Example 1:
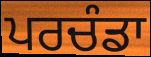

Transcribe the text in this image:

ਪਰਚੰਡਾ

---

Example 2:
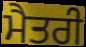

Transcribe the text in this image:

ਮੈਤਰੀ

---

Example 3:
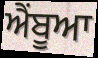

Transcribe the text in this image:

ਐਂਬੂਆ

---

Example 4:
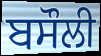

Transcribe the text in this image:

ਬਸੌਲੀ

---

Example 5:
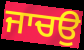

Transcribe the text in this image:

ਜਾਚਉ